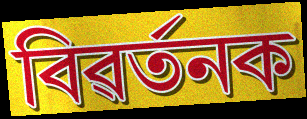
বিৱৰ্তনক